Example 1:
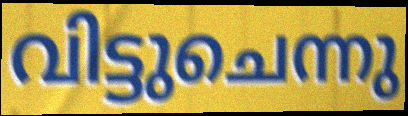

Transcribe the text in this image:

വിട്ടുചെന്നു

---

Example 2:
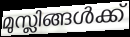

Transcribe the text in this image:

മുസ്ലിങ്ങൾക്ക്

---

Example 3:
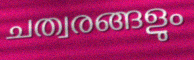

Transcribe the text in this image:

ചത്വരങ്ങളും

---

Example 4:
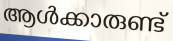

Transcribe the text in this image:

ആൾക്കാരുണ്ട്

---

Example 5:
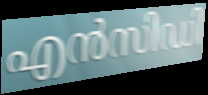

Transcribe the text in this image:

എൻസിഡി